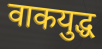
वाकयुद्ध